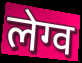
लेग्व